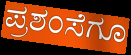
ಪ್ರಶಂಸೆಗೂ